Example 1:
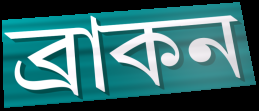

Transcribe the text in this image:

ব্রাকন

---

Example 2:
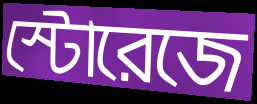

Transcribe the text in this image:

স্টোরেজে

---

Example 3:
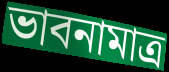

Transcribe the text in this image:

ভাবনামাত্র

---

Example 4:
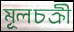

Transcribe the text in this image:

মূলচক্রী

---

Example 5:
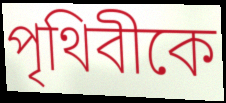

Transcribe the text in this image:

পৃথিবীকে